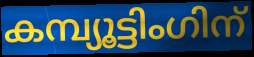
കമ്പ്യൂട്ടിംഗിന്